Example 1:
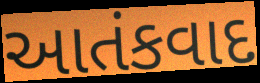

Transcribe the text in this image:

આતંકવાદ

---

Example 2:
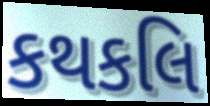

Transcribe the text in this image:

કથકલિ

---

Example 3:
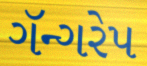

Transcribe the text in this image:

ગૅન્ગરેપ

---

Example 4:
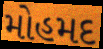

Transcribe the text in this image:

મોહમદ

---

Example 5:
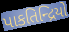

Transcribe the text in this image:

પાકતિન્દ્રિયો